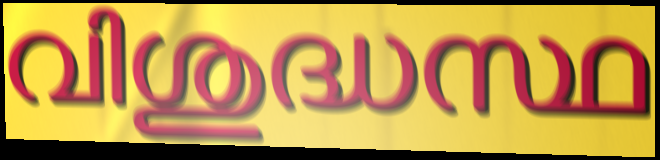
വിശുദ്ധസ്ഥ